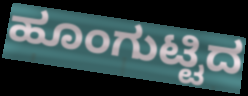
ಹೂಂಗುಟ್ಟಿದ